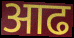
आढ